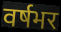
वर्षभर